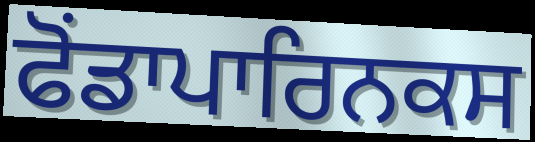
ਫੋਂਡਾਪਾਰਿਨਕਸ